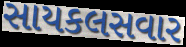
સાયકલસવાર